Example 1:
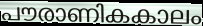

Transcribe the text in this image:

പൗരാണികകാലം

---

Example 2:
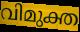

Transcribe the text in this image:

വിമുക്ത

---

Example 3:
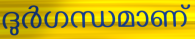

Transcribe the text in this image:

ദുർഗന്ധമാണ്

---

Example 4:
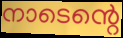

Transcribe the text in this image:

നാടെന്റെ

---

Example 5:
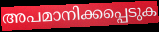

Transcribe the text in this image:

അപമാനിക്കപ്പെടുക